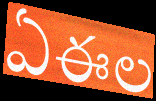
ఏఈల